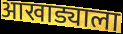
आखाड्याला